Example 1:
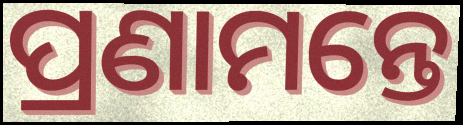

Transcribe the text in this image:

ପ୍ରଣାମନ୍ତେ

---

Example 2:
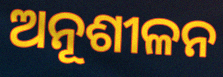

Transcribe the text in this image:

ଅନୂଶୀଳନ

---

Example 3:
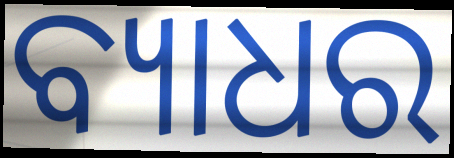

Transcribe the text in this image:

ବ୍ୟାଧର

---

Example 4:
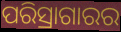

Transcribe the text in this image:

ପରିସ୍ରାଗାରର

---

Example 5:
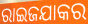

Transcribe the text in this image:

ରାଇଜଯାକର